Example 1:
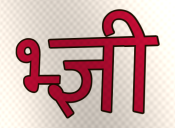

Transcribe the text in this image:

भ्ज्ञी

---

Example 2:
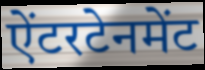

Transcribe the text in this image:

ऐंटरटेनमेंट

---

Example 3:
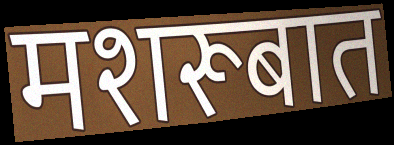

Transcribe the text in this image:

मशरूबात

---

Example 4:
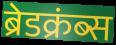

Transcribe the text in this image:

ब्रेडक्रंब्स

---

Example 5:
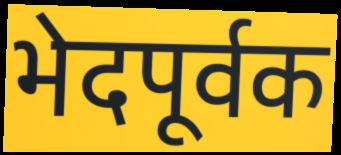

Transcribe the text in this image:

भेदपूर्वक